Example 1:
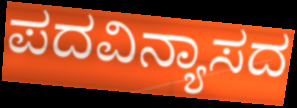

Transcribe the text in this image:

ಪದವಿನ್ಯಾಸದ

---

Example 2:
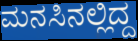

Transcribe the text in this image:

ಮನಸಿನಲ್ಲಿದ್ದ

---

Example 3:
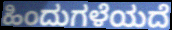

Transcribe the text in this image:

ಹಿಂದುಗಳೆಯದೆ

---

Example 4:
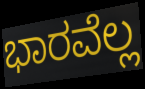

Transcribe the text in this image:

ಭಾರವೆಲ್ಲ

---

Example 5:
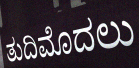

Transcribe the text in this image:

ತುದಿಮೊದಲು